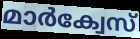
മാർക്വേസ്